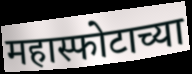
महास्फोटाच्या